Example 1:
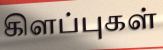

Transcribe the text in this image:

கிளப்புகள்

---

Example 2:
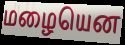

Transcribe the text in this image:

மழையென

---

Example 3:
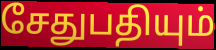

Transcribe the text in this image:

சேதுபதியும்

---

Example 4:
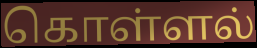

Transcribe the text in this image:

கொள்ளல்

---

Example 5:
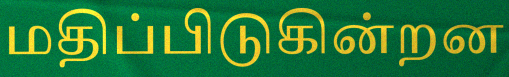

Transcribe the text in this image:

மதிப்பிடுகின்றன